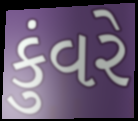
કુંવરે